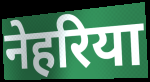
नेहरिया